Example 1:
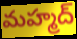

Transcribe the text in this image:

మహ్మద్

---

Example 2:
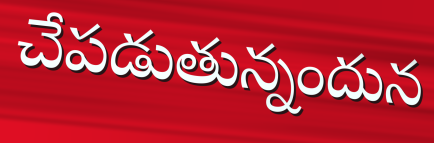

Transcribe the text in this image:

చేపడుతున్నందున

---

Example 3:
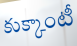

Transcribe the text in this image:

కుక్కాంటీ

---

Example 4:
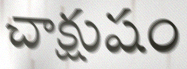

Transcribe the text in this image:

చాక్షుషం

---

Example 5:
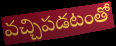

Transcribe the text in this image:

వచ్చిపడటంతో